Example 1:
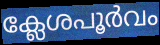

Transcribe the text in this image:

ക്ലേശപൂർവം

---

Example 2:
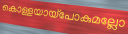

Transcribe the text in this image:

കൊള്ളയായ്പോകുമല്ലോ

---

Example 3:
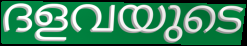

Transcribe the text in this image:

ദളവയുടെ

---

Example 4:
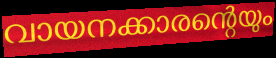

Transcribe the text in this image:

വായനക്കാരന്റെയും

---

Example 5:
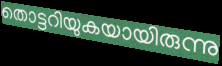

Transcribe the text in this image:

തൊട്ടറിയുകയായിരുന്നു